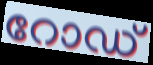
റോഡ്